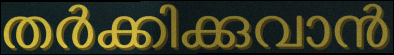
തർക്കിക്കുവാൻ